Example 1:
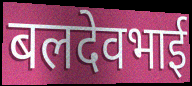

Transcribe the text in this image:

बलदेवभाई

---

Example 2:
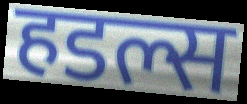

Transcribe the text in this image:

हडल्स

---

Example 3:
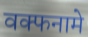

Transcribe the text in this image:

वक्फनामे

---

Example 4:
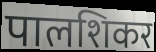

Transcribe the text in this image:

पालशिकर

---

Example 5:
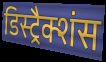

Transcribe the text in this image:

डिस्ट्रैक्शंस